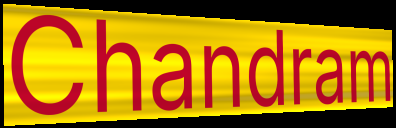
Chandram